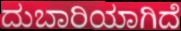
ದುಬಾರಿಯಾಗಿದೆ